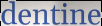
dentine